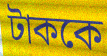
টাককে